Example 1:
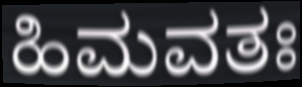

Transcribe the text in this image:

ಹಿಮವತಃ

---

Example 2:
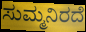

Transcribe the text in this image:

ಸುಮ್ಮನಿರದೆ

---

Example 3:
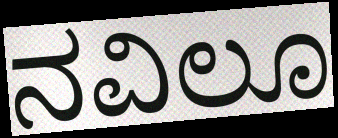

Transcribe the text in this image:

ನವಿಲೂ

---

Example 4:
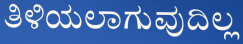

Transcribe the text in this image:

ತಿಳಿಯಲಾಗುವುದಿಲ್ಲ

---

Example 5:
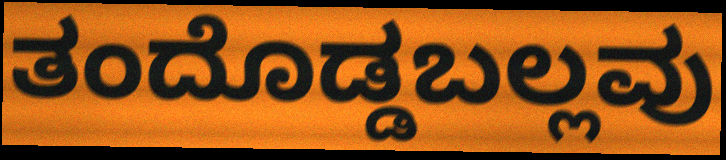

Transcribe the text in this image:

ತಂದೊಡ್ಡಬಲ್ಲವು